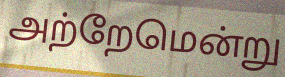
அற்றேமென்று